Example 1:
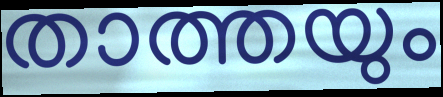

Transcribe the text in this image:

താത്തയും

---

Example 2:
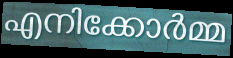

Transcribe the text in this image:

എനിക്കോർമ്മ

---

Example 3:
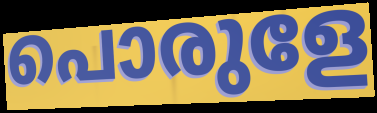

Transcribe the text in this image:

പൊരുളേ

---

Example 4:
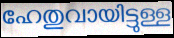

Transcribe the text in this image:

ഹേതുവായിട്ടുള്ള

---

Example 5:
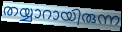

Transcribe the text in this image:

തയ്യാറായിരുന്ന